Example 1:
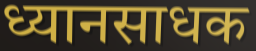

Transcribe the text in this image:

ध्यानसाधक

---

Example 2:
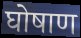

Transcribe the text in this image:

घोषाण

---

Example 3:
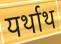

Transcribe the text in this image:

यर्थाथ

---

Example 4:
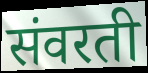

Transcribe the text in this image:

संवरती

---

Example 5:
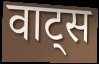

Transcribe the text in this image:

वाट्स